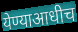
येण्याआधीच